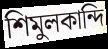
শিমুলকান্দি